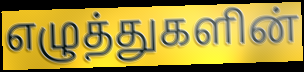
எழுத்துகளின்